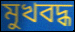
মুখবদ্ধ